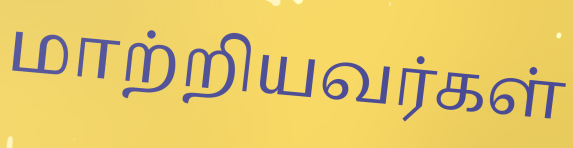
மாற்றியவர்கள்